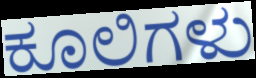
ಕೂಲಿಗಳು